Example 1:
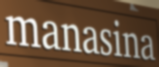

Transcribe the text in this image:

manasina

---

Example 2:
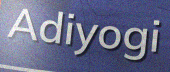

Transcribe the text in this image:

Adiyogi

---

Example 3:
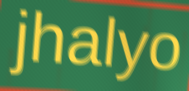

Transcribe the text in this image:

jhalyo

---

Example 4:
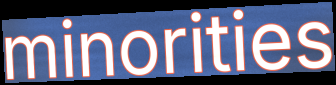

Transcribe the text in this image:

minorities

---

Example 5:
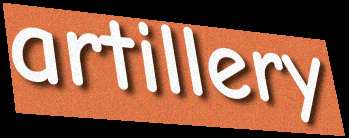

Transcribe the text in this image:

artillery